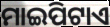
ମାଇପିଟାଏ